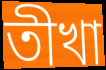
তীখা